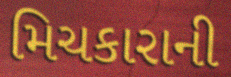
મિચકારાની